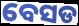
ବେସଡ